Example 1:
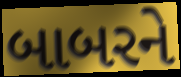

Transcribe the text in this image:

બાબરને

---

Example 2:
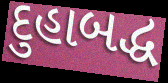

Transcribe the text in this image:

દુહાબદ્ધ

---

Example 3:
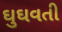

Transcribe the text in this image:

ઘુઘવતી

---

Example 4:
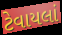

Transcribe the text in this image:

ટેવાયલાં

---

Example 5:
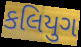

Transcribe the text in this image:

કલિયુગ